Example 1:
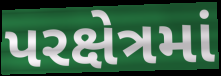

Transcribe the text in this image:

પરક્ષેત્રમાં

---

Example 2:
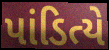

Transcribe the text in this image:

પાંડિત્યે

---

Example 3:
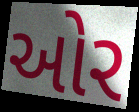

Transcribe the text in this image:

ઓર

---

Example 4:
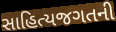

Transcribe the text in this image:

સાહિત્યજગતની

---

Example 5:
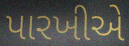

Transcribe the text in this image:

પારખીએ